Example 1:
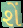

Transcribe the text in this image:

શેં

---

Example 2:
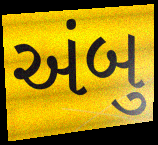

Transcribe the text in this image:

અંબુ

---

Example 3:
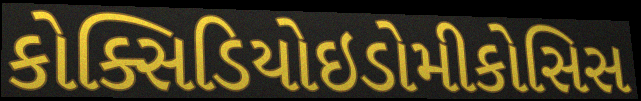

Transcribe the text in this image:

કોક્સિડિયોઇડોમીકોસિસ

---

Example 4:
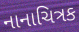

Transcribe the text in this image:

નાનાચિત્રક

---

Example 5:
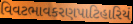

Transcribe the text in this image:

વિવટભાવકરણપાટિહારિયં